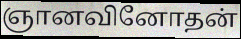
ஞானவினோதன்